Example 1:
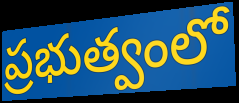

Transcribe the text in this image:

ప్రభుత్వంలో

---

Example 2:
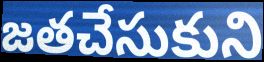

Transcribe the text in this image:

జతచేసుకుని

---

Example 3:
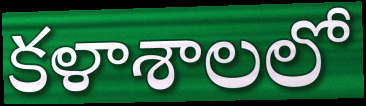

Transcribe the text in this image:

కళాశాలలో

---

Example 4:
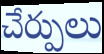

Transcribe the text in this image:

చేర్పులు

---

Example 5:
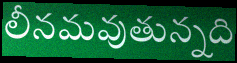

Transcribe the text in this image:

లీనమవుతున్నది